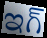
ఇగ్